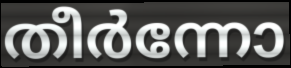
തീർന്നോ